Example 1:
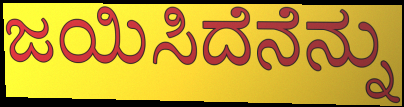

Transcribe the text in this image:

ಜಯಿಸಿದೆನೆನ್ನು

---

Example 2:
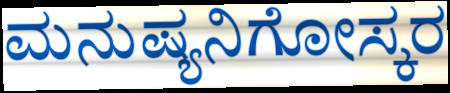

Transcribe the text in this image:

ಮನುಷ್ಯನಿಗೋಸ್ಕರ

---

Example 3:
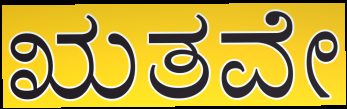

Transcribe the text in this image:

ಋತವೇ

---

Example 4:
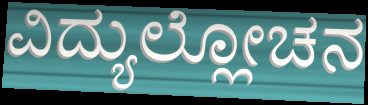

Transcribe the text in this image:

ವಿದ್ಯುಲ್ಲೋಚನ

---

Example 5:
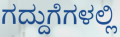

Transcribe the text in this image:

ಗದ್ದುಗೆಗಳಲ್ಲಿ